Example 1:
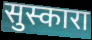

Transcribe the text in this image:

सुस्कारा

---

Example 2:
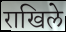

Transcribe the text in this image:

राखिले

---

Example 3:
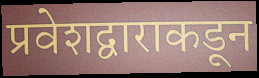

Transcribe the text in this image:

प्रवेशद्वाराकडून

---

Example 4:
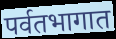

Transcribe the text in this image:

पर्वतभागात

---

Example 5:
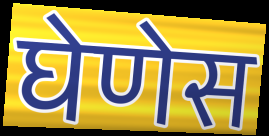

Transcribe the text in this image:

घेणेस